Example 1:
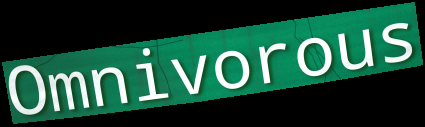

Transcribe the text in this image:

Omnivorous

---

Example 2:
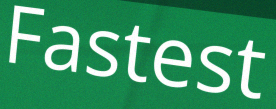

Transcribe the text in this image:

Fastest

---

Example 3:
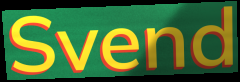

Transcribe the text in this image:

Svend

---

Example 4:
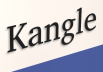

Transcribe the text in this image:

Kangle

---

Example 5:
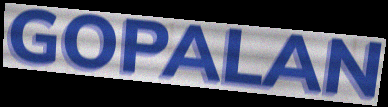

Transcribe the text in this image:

GOPALAN